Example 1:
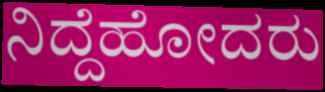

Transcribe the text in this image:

ನಿದ್ದೆಹೋದರು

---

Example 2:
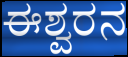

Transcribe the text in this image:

ಈಶ್ವರನ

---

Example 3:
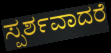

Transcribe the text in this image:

ಸ್ಪರ್ಶವಾದರೆ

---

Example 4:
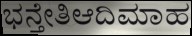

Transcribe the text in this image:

ಭನ್ತೇತಿಆದಿಮಾಹ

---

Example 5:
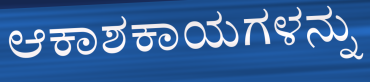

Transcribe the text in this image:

ಆಕಾಶಕಾಯಗಳನ್ನು